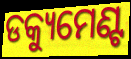
ଡକ୍ୟୁମେଣ୍ଟ